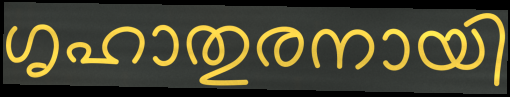
ഗൃഹാതുരനായി